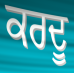
ਕਰਦੂ